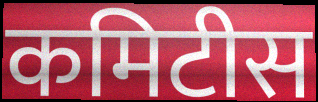
कमिटीस